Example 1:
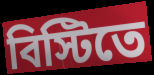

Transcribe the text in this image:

বিস্টিতে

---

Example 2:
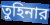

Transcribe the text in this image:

তুহিনার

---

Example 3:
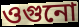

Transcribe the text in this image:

ওগুনো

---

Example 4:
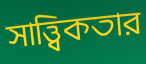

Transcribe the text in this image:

সাত্ত্বিকতার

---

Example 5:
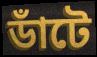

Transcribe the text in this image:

ডাঁটে